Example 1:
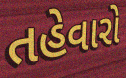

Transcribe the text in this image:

તહેવારો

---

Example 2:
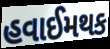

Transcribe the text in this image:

હવાઈમથક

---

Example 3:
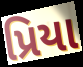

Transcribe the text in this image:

પ્રિયા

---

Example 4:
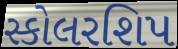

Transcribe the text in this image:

સ્કોલરશિપ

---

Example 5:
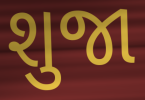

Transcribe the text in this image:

શુજા